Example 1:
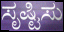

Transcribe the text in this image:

ಸೃಷ್ಟಿಸು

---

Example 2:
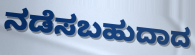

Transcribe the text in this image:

ನಡೆಸಬಹುದಾದ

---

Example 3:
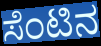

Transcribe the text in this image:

ಸೆಂಟಿನ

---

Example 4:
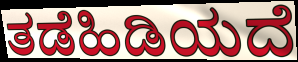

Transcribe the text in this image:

ತಡೆಹಿಡಿಯದೆ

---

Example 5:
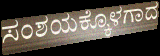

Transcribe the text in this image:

ಸಂಶಯಕ್ಕೊಳಗಾದ